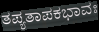
ತಪ್ಯತಾಪಕಭಾವಃ